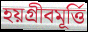
হয়গ্রীবমূর্ত্তি